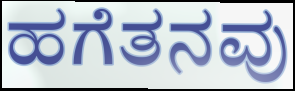
ಹಗೆತನವು